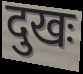
दुखः